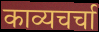
काव्यचर्चा